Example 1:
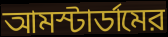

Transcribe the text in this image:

আমস্টার্ডামের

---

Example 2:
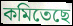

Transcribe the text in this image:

কমিতেছে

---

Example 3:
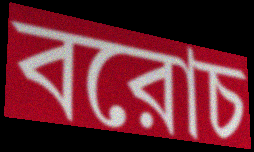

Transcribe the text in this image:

বরোচ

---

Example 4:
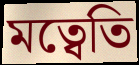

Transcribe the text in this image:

মত্বেতি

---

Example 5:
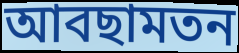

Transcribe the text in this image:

আবছামতন